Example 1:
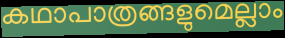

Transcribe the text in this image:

കഥാപാത്രങ്ങളുമെല്ലാം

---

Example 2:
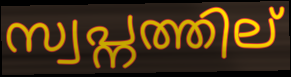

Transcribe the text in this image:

സ്വപ്നത്തില്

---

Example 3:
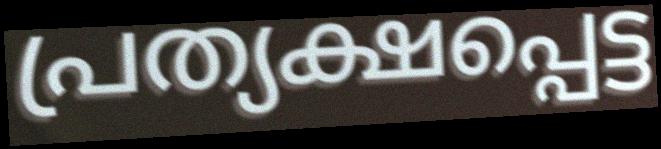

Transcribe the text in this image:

പ്രത്യക്ഷപ്പെട്ട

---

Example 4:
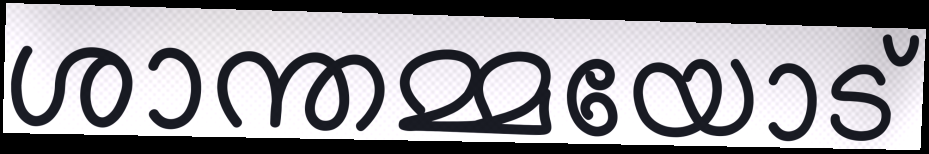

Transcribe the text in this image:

ശാന്തമ്മയോട്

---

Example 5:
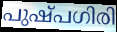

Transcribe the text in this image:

പുഷ്പഗിരി